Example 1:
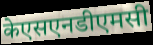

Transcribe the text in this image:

केएसएनडीएमसी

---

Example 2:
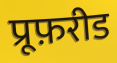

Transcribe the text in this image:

प्रूफ़रीड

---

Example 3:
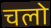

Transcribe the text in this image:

चलो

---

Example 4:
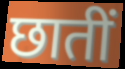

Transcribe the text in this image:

छातीं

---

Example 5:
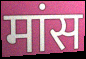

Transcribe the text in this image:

मांस